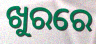
ଖୁରରେ